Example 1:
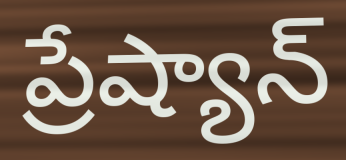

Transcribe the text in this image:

ప్రేష్యాన్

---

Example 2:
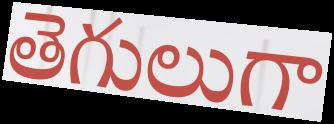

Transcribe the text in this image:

తెగులుగా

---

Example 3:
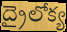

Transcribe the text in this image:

ద్రైలోక్య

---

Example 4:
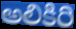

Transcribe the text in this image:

అలికిరి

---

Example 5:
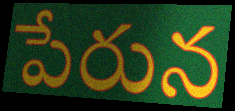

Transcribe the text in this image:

పేరున